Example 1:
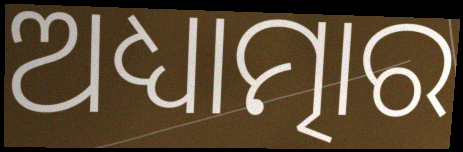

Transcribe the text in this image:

ଅଧ୍ୟାତ୍ମାର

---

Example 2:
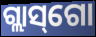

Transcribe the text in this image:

ଗ୍ଲାସ୍‌ଗୋ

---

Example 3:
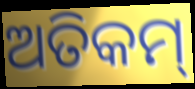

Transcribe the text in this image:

ଅତିକମ୍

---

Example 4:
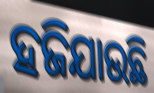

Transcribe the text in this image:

ହଜିଯାଉଛି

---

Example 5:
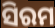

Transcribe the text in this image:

ସିରମ